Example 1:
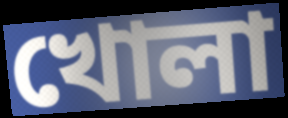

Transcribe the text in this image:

খোলা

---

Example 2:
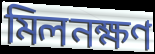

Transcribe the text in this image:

মিলনক্ষণ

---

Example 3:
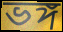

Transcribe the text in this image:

ভঙ্গ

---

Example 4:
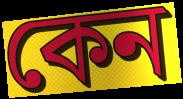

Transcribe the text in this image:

কেন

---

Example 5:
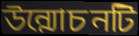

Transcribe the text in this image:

উন্মোচনটি